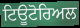
ਟਿਊਟੋਰਿਅਲ